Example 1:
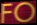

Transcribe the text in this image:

FO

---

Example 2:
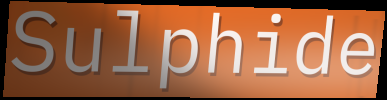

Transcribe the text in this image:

Sulphide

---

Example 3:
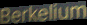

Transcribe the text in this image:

Berkelium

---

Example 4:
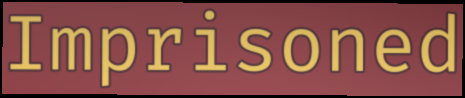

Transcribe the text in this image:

Imprisoned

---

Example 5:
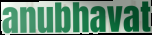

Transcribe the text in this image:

anubhavat